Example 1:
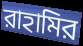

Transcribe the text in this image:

রাহামির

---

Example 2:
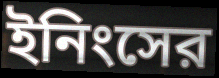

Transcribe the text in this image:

ইনিংসের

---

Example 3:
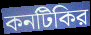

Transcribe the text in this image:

কনটিকির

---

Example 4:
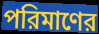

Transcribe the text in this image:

পরিমাণের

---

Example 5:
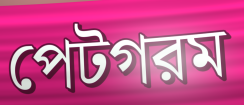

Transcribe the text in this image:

পেটগরম